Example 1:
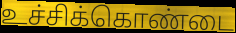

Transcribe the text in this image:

உச்சிக்கொண்டை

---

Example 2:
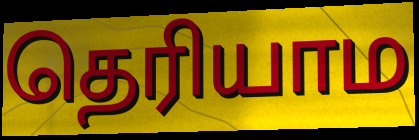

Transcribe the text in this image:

தெரியாம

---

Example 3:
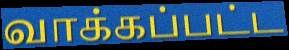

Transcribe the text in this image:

வாக்கப்பட்ட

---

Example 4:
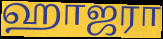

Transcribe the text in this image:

ஹாஜரா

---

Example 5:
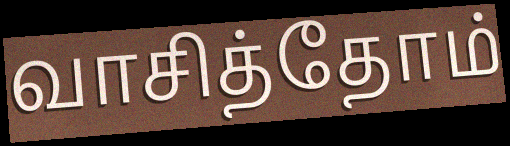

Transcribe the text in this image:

வாசித்தோம்